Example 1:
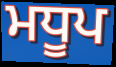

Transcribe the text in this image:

ਮਧੂਪ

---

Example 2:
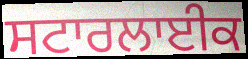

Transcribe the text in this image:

ਸਟਾਰਲਾਈਕ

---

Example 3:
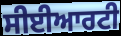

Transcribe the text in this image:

ਸੀਈਆਰਟੀ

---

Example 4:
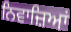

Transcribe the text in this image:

ਨਿਵਾਜ਼ਿਆਂ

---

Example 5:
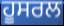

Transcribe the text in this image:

ਹੂਸਰਲ